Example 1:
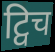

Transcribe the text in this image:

ट्विच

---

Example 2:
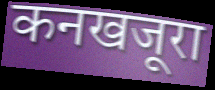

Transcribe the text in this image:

कनखजूरा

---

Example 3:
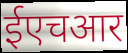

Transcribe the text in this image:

ईएचआर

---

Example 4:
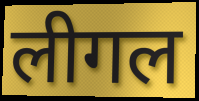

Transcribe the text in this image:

लीगल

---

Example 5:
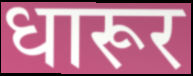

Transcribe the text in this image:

धारूर